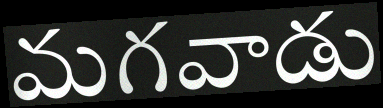
మగవాడు